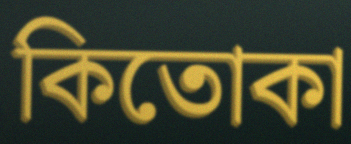
কিতোকা